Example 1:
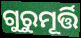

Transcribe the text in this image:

ଗୁରୁମୂର୍ତ୍ତି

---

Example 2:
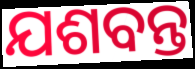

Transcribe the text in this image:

ଯଶବନ୍ତ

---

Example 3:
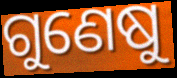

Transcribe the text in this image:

ଗୁଣେଷୁ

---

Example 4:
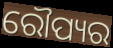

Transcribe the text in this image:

ରୌପ୍ୟର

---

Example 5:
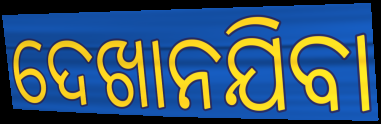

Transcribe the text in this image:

ଦେଖାନଯିବା